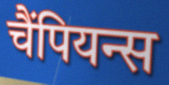
चैंपियन्स